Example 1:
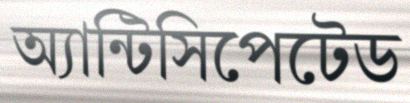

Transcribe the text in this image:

অ্যান্টিসিপেটেড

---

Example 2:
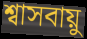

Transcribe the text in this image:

শ্বাসবায়ু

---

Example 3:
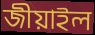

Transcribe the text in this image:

জীয়াইল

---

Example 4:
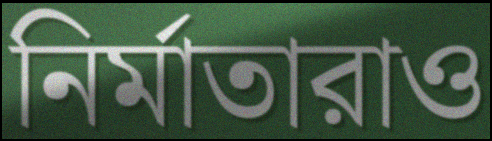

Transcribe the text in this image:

নির্মাতারাও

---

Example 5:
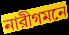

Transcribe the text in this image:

নারীগমনে